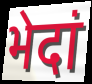
भेदां